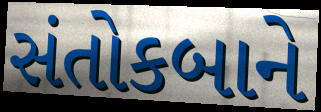
સંતોકબાને